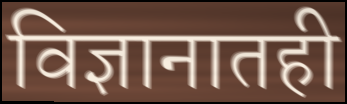
विज्ञानातही